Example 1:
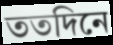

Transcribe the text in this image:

ততদিনে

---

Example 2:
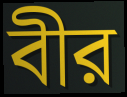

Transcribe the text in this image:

বীর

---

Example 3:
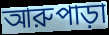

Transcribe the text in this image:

আরুপাড়া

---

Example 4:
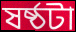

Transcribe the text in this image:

ষষ্ঠটা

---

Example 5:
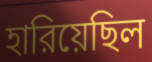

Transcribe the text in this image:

হারিয়েছিল